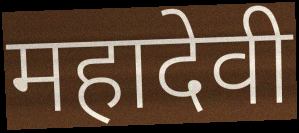
महादेवी